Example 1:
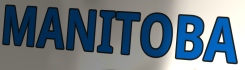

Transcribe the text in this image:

MANITOBA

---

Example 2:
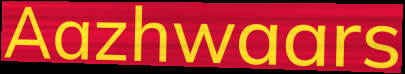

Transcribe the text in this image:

Aazhwaars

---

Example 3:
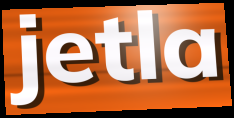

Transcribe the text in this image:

jetla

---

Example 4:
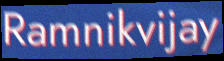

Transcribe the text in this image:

Ramnikvijay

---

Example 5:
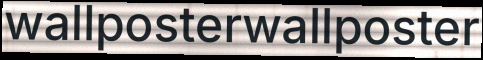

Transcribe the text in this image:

wallposterwallposter